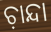
ଚ଼ାନ୍ଦା